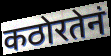
कठोरतेनं